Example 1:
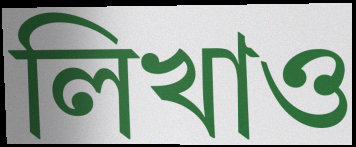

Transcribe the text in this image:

লিখাও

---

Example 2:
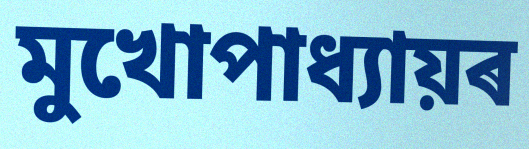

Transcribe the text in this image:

মুখোপাধ্যায়ৰ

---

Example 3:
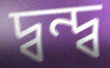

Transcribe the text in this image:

দ্বন্দ্ব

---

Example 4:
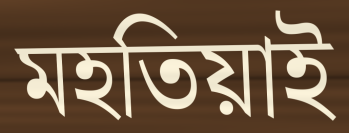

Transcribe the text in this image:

মহতিয়াই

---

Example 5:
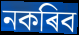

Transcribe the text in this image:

নকৰিব